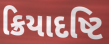
ક્રિયાદષ્ટિ